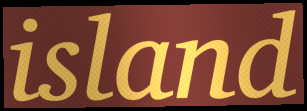
island